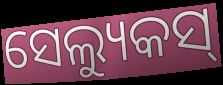
ସେଲ୍ୟୁକସ୍